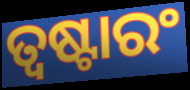
ତ୍ୱଷ୍ଟାରଂ